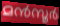
മൻസൂർ